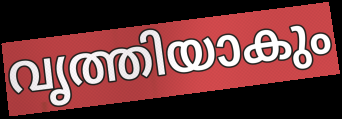
വൃത്തിയാകും